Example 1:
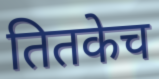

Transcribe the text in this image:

तितकेच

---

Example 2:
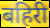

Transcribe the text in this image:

बहिरी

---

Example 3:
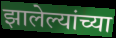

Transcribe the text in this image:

झालेल्यांच्या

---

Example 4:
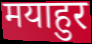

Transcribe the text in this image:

मयाहुर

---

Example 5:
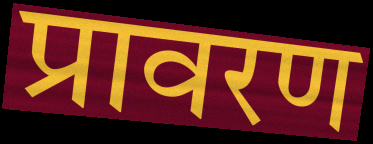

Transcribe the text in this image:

प्रावरण